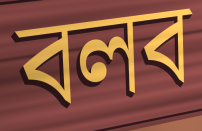
বলব